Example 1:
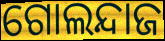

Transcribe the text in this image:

ଗୋଲନ୍ଦାଜ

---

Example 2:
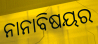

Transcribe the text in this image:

ନାନାବିଷୟର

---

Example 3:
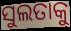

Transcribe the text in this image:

ସୁଲତାକୁ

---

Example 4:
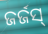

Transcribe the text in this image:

ଜର୍ଜସ୍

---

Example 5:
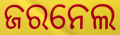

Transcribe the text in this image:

ଜରନେଲ